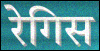
रेगिस